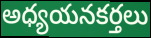
అధ్యయనకర్తలు